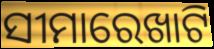
ସୀମାରେଖାଟି